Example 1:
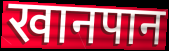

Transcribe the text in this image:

खानपान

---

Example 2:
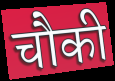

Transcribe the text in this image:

चौकी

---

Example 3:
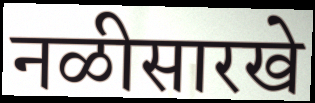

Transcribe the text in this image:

नळीसारखे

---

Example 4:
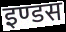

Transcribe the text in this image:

इण्डस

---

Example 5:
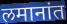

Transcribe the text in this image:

लमानांत